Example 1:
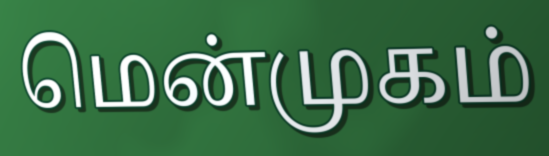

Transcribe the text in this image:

மென்முகம்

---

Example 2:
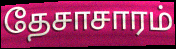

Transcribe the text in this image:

தேசாசாரம்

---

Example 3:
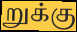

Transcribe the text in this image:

றுக்கு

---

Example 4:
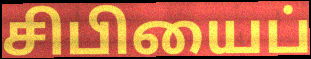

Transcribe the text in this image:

சிபியைப்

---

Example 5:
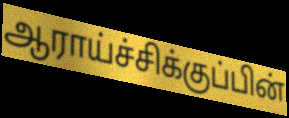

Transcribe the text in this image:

ஆராய்ச்சிக்குப்பின்